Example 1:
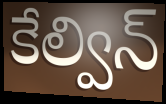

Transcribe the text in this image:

కేల్విన్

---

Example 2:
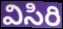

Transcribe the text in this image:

విసిరి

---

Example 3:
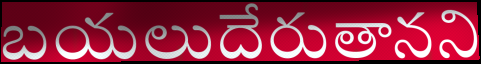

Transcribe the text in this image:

బయలుదేరుతానని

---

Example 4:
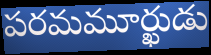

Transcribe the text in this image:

పరమమూర్ఖుడు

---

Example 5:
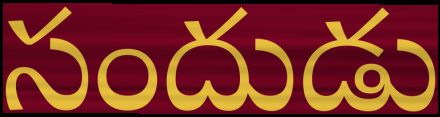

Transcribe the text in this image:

సందుడు